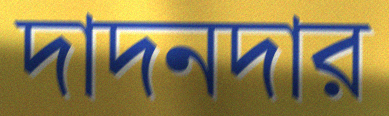
দাদনদার